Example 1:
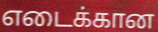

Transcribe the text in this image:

எடைக்கான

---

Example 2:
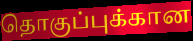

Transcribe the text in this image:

தொகுப்புக்கான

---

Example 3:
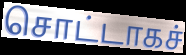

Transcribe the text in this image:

சொட்டாகச்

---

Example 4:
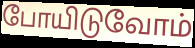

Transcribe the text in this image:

போயிடுவோம்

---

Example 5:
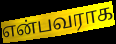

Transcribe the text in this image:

என்பவராக